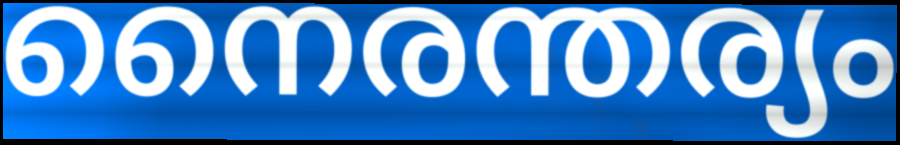
നൈരന്തര്യം